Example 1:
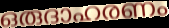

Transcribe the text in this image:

ഒരുദാഹരണം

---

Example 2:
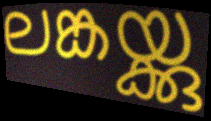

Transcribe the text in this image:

ലങ്കയ്ക്കു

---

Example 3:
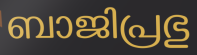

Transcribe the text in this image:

ബാജിപ്രഭു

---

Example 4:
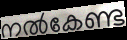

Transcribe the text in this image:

നൽകേണ്ട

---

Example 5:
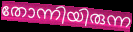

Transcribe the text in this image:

തോന്നിയിരുന്ന